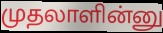
முதலாளின்னு